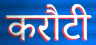
करौटी